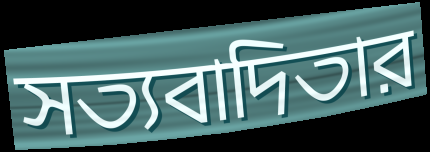
সত্যবাদিতার